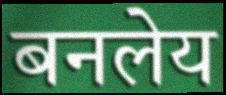
बनलेय